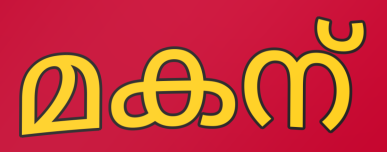
മകന്